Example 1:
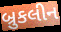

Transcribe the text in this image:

બ્રુકલીન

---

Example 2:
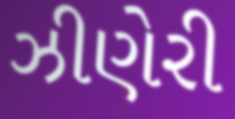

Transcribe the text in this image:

ઝીણેરી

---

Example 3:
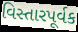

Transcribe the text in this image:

વિસ્તારપૂર્વક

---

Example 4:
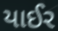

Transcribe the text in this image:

યાઈર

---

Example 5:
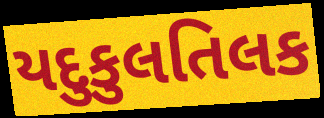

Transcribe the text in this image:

યદુકુલતિલક